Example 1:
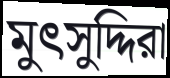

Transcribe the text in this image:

মুৎসুদ্দিরা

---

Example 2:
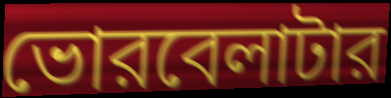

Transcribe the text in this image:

ভোরবেলাটার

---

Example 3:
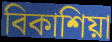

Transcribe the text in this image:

বিকাশিয়া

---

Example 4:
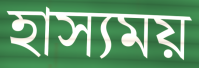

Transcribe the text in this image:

হাস্যময়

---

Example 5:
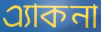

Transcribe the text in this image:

এ্যাকনা